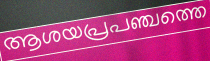
ആശയപ്രപഞ്ചത്തെ